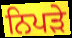
ਨਿਪੜੇ